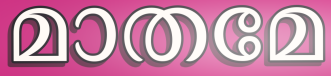
മാതമേ